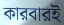
কারবারই